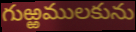
గుఱ్ఱములకును